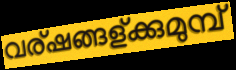
വര്ഷങ്ങള്ക്കുമുമ്പ്